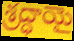
శ్రద్ధాయై